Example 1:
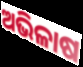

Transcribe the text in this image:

ଅଭିଳାଷ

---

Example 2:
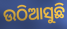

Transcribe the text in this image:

ଉଠିଆସୁଛି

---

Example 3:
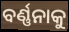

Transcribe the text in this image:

ବର୍ଣ୍ଣନାକୁ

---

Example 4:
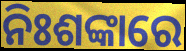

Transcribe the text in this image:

ନିଃଶଙ୍କାରେ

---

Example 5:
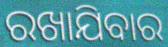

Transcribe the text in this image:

ରଖାଯିବାର